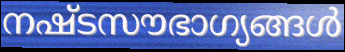
നഷ്ടസൗഭാഗ്യങ്ങൾ